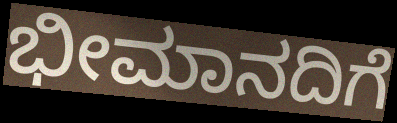
ಭೀಮಾನದಿಗೆ